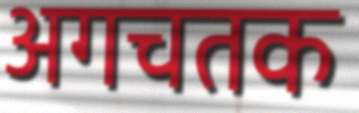
अगचतक